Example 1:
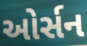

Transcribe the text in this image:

ઓર્સન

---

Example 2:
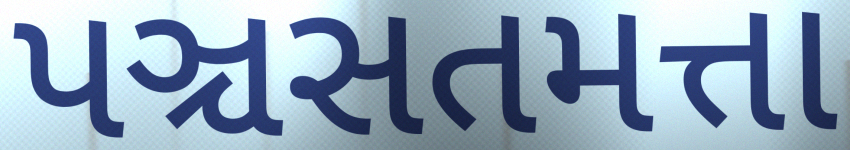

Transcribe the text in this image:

પઞ્ચસતમત્તા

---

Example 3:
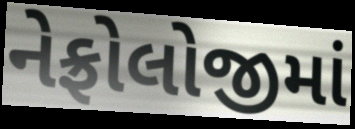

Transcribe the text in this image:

નેફ્રોલોજીમાં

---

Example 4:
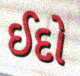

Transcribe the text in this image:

ઈદો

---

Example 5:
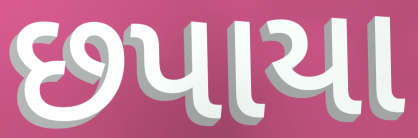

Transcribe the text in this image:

છપાયા